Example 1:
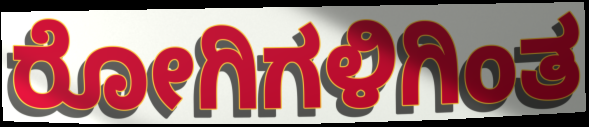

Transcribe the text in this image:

ರೋಗಿಗಳಿಗಿಂತ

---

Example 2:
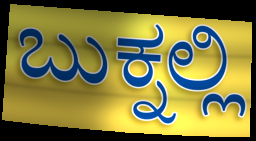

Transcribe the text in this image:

ಬುಕ್ನಲ್ಲಿ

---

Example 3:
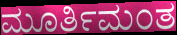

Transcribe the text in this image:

ಮೂರ್ತಿಮಂತ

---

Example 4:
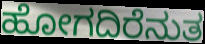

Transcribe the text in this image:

ಹೋಗದಿರೆನುತ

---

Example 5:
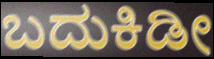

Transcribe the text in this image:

ಬದುಕಿಡೀ